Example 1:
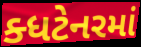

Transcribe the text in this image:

ક્ધટેનરમાં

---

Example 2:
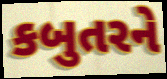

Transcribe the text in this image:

કબુતરને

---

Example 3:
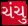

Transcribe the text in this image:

ચંચુ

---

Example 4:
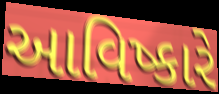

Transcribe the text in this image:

આવિષ્કારે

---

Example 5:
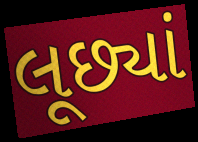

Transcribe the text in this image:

લૂછ્યાં